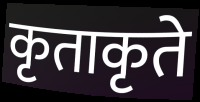
कृताकृते